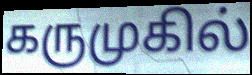
கருமுகில்